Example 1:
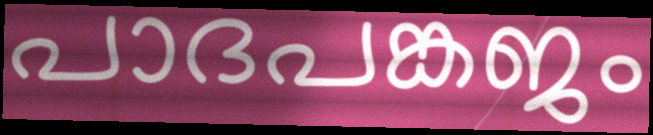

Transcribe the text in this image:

പാദപങ്കജം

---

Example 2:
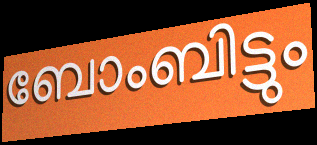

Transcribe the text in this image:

ബോംബിട്ടും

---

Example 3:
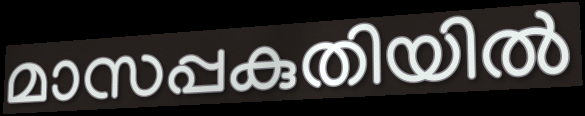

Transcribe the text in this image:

മാസപ്പകുതിയിൽ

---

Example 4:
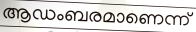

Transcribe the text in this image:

ആഡംബരമാണെന്ന്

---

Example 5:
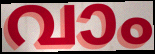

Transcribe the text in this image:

വാം